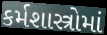
કર્મશાસ્ત્રોમાં